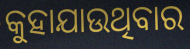
କୁହାଯାଉଥିବାର